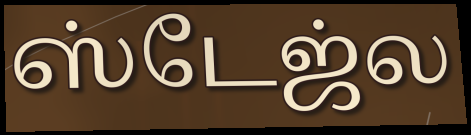
ஸ்டேஜ்ல